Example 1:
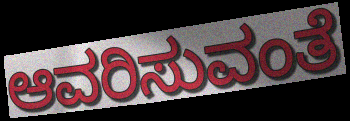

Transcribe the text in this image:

ಆವರಿಸುವಂತೆ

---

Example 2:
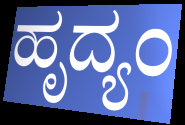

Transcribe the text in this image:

ಹೃದ್ಯಂ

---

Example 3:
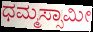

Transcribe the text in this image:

ಧಮ್ಮಸ್ಸಾಮೀ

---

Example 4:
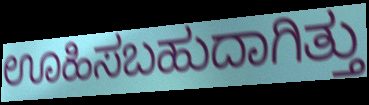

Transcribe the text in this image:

ಊಹಿಸಬಹುದಾಗಿತ್ತು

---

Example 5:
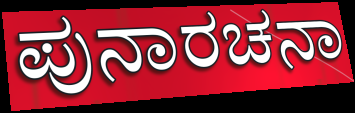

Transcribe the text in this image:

ಪುನಾರಚನಾ